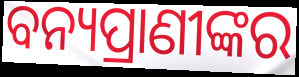
ବନ୍ୟପ୍ରାଣୀଙ୍କର